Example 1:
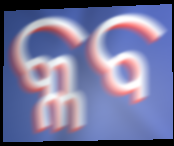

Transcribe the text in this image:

କ୍ଳବ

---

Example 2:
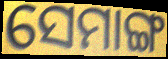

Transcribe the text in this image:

ସେମାଙ୍ଗ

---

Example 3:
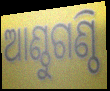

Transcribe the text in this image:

ଆଣ୍ଠୁଗଣ୍ଠି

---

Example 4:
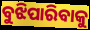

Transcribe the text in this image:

ବୁଝିପାରିବାକୁ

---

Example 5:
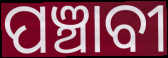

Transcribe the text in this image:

ପଞ୍ଚାବୀ